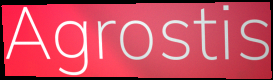
Agrostis